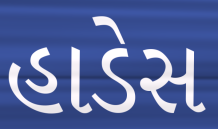
હાડેસ